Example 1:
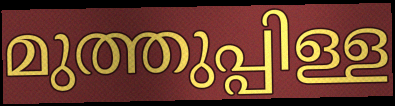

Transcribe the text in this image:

മുത്തുപ്പിള്ള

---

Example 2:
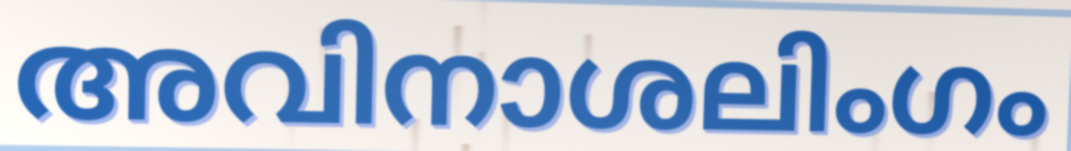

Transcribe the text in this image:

അവിനാശലിംഗം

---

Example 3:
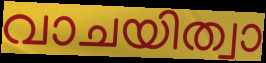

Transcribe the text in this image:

വാചയിത്വാ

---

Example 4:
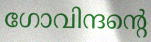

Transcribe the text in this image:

ഗോവിന്ദന്റെ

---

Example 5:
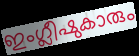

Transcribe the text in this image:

ഇംഗ്ലീഷുകാരും